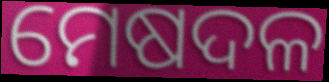
ମେଷଦଳ